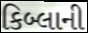
કિબ્લાની